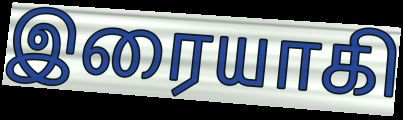
இரையாகி